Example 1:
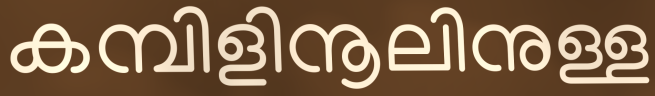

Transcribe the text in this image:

കമ്പിളിനൂലിനുള്ള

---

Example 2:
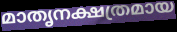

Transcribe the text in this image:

മാതൃനക്ഷത്രമായ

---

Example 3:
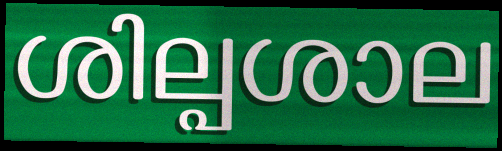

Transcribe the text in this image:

ശില്പശാല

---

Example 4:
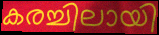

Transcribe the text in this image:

കരച്ചിലായി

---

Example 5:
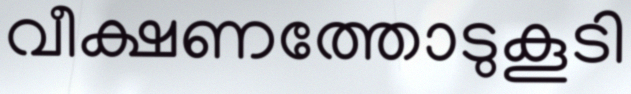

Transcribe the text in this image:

വീക്ഷണത്തോടുകൂടി